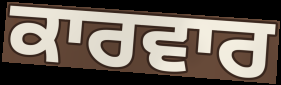
ਕਾਰਵਾਰ